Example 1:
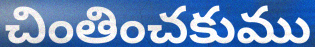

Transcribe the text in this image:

చింతించకుము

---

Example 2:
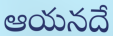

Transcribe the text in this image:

ఆయనదే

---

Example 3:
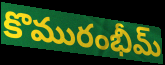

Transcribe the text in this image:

కొమురంభీమ్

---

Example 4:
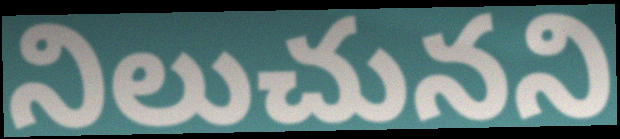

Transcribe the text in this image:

నిలుచునని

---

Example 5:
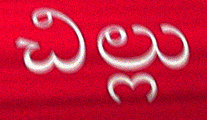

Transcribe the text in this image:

చిల్లు